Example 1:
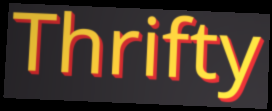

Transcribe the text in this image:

Thrifty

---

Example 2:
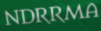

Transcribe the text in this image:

NDRRMA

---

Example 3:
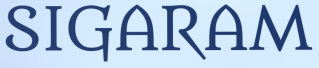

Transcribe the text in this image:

SIGARAM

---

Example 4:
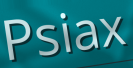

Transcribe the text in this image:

Psiax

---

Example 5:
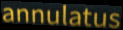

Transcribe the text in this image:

annulatus